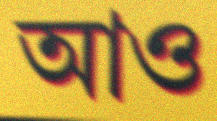
আও